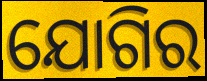
ଯୋଗିର